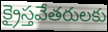
క్రైస్తవేతరులకు